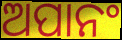
ଅପାନଂ